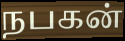
நபகன்